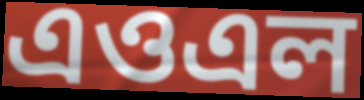
এওএল